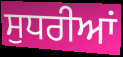
ਸੁਧਰੀਆਂ